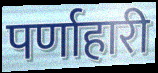
पर्णाहारी